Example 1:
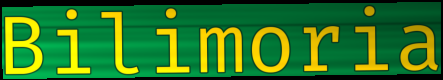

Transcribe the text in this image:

Bilimoria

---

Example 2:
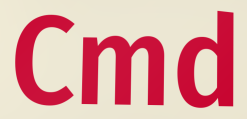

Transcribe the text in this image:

Cmd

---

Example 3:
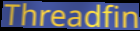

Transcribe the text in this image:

Threadfin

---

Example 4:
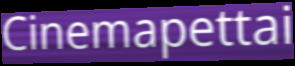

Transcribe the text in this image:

Cinemapettai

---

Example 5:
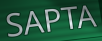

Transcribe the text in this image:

SAPTA